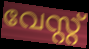
വേസ്റ്റ്